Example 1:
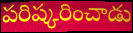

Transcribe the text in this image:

పరిష్కరించాడు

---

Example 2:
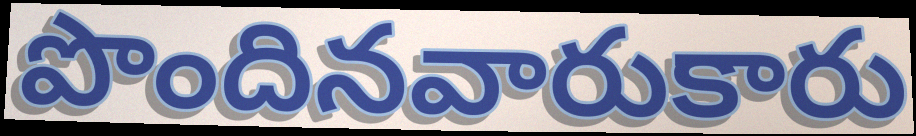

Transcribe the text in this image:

పొందినవారుకారు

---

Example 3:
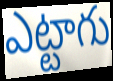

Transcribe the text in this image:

ఎట్టాగు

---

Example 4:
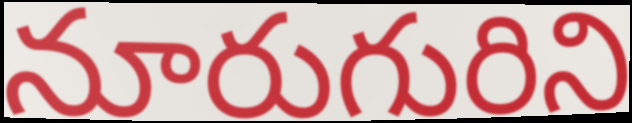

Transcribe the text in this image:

నూరుగురిని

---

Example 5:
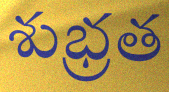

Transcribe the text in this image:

శుభ్రత